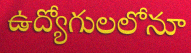
ఉద్యోగులలోనూ